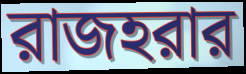
রাজহরার